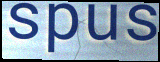
spus